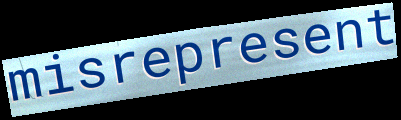
misrepresent